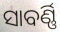
ସାବର୍ଣ୍ଣି